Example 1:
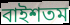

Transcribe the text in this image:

বাইশতম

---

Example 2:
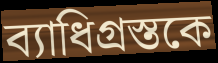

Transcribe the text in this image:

ব্যাধিগ্রস্তকে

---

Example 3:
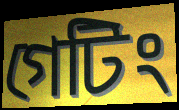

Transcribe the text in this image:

গেটিং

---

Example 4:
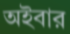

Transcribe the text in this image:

অইবার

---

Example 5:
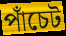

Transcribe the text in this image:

পাঁচেট